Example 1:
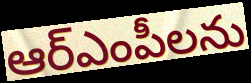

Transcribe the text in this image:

ఆర్ఎంపీలను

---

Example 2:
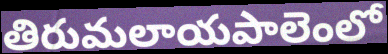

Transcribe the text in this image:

తిరుమలాయపాలెంలో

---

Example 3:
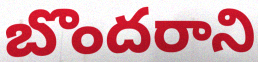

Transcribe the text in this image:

బొందరాని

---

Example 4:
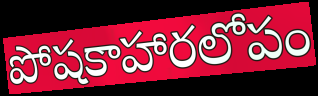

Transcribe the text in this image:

పోషకాహారలోపం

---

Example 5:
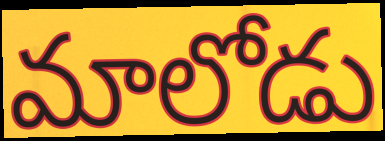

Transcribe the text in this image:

మాలోడు